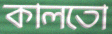
কালতো